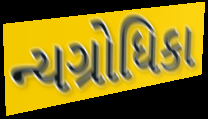
ન્યગ્રોધિકા